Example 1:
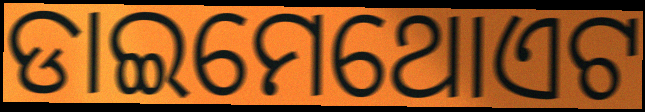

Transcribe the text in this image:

ଡାଇମେଥୋଏଟ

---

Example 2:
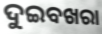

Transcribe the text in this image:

ଦୁଇବଖରା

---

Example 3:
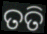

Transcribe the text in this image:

ତତି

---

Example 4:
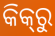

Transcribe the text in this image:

କିକ୍‍ରୁ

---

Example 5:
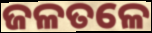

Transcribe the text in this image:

ଜଳତଳେ